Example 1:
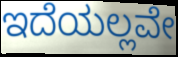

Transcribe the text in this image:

ಇದೆಯಲ್ಲವೇ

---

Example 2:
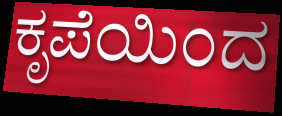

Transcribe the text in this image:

ಕೃಪೆಯಿಂದ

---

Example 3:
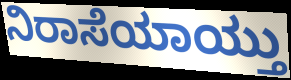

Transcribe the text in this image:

ನಿರಾಸೆಯಾಯ್ತು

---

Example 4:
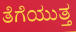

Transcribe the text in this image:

ತೆಗೆಯುತ್ತ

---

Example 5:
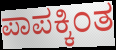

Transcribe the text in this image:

ಪಾಪಕ್ಕಿಂತ